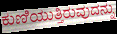
ಕುಣಿಯುತ್ತಿರುವುದನ್ನು